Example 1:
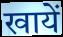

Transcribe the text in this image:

खायें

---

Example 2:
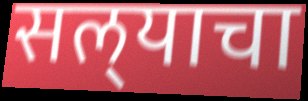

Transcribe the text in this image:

सल्याचा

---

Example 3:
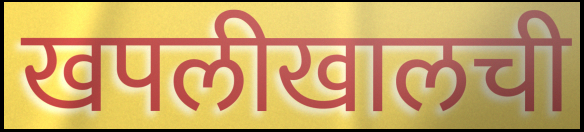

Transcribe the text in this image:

खपलीखालची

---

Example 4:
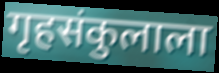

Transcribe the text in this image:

गृहसंकुलाला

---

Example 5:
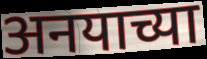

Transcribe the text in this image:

अनयाच्या